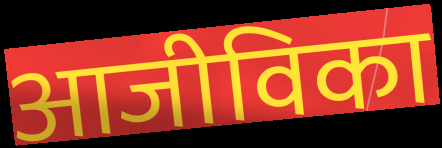
आजीविका